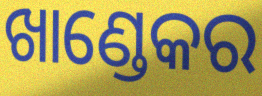
ଖାଣ୍ଡେକର